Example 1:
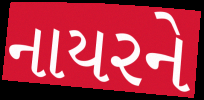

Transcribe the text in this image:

નાયરને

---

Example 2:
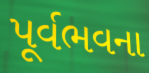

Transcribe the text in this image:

પૂર્વભવના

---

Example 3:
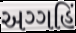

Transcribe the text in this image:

અગ્ગહિં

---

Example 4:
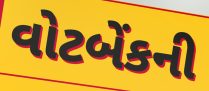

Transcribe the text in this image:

વોટબેંકની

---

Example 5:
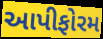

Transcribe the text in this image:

આપીફોરમ